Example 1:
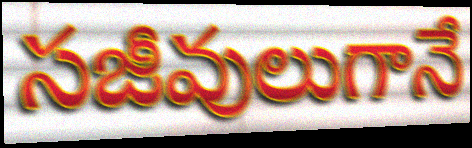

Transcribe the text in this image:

సజీవులుగానే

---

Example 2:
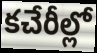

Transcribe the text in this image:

కచేరీల్లో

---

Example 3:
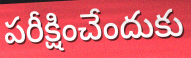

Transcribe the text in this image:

పరీక్షించేందుకు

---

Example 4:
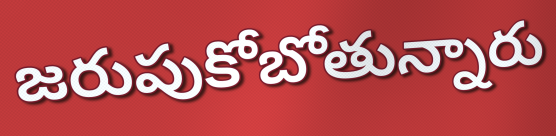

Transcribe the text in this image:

జరుపుకోబోతున్నారు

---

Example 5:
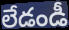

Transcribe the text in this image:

లేడండీ